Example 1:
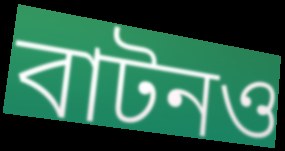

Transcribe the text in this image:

বাটনও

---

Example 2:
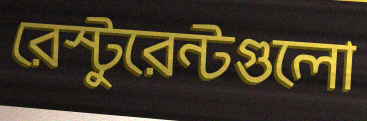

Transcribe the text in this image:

রেস্টুরেন্টগুলো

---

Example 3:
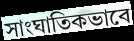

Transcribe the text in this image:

সাংঘাতিকভাবে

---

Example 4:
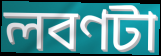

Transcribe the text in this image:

লবণটা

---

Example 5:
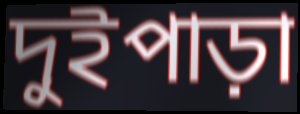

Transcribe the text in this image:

দুইপাড়া